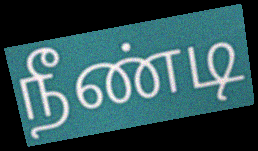
நீண்டி